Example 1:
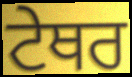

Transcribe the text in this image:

ਟੇਥਰ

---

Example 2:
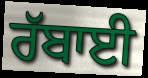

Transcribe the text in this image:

ਰੱਬਾਈ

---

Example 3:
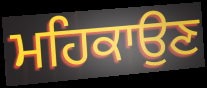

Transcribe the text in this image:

ਮਹਿਕਾਉਣ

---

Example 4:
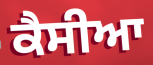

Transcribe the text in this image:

ਕੈਸੀਆ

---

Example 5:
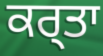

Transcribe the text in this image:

ਕਰ੍ਤਾ